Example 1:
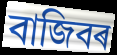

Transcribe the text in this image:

বাজিবৰ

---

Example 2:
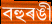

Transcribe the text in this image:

বহুৰঙী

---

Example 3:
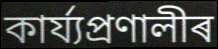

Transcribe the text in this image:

কাৰ্য্যপ্ৰণালীৰ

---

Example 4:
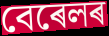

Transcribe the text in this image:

বেৰেলৰ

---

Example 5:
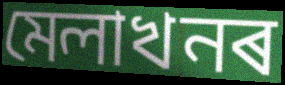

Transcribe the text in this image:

মেলাখনৰ